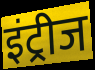
इंट्रीज